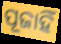
ପୂଜାହିଁ